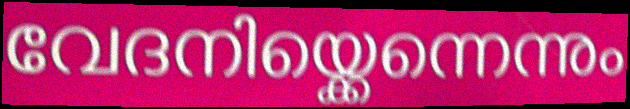
വേദനിയ്ക്കെന്നെന്നും